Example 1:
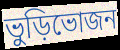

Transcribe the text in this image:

ভুড়িভোজন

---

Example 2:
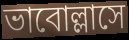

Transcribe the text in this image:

ভাবোল্লাসে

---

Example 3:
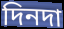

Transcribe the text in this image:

দিনদা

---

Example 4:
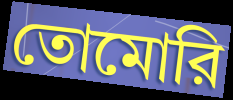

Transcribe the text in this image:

তোমোরি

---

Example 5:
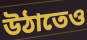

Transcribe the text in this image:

উঠাতেও